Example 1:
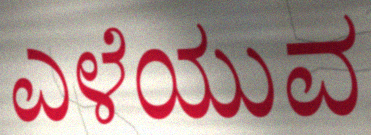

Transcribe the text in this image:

ಎಳೆಯುವ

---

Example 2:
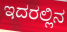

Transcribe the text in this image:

ಇದರಲ್ಲಿನ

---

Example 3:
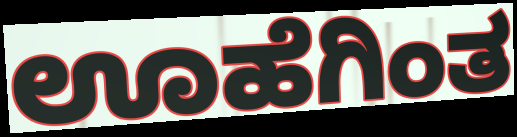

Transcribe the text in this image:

ಊಹೆಗಿಂತ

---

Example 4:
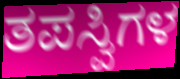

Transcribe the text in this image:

ತಪಸ್ವಿಗಳ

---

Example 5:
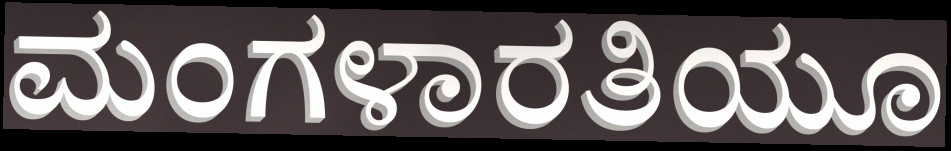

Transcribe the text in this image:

ಮಂಗಳಾರತಿಯೂ